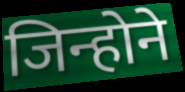
जिन्‍होने